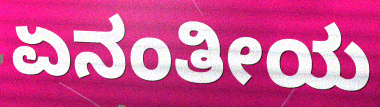
ಏನಂತೀಯ